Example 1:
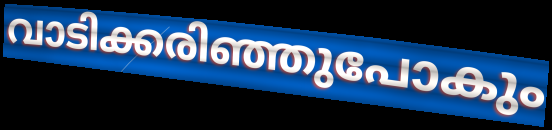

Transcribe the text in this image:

വാടിക്കരിഞ്ഞുപോകും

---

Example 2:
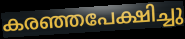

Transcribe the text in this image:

കരഞ്ഞപേക്ഷിച്ചു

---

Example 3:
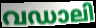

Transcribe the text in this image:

വഡാലി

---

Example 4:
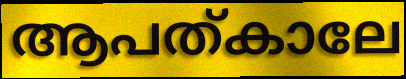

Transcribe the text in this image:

ആപത്കാലേ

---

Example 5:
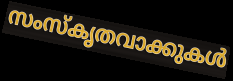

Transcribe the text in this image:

സംസ്കൃതവാക്കുകൾ